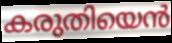
കരുതിയെൻ